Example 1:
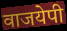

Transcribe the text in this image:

वाजयेपी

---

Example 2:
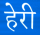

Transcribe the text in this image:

हेरी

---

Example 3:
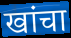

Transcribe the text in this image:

खांचा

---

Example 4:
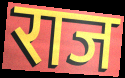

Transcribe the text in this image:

राज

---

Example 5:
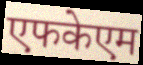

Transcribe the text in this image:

एफकेएम